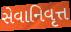
સેવાનિવૃત્ત